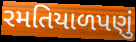
રમતિયાળપણું